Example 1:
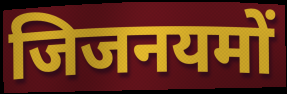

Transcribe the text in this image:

जिजनयमों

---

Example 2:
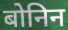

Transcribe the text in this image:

बोनिन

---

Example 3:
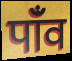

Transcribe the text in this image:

पांँव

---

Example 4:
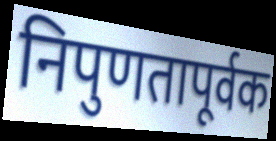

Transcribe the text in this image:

निपुणतापूर्वक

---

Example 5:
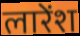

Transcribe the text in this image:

लारेंश